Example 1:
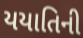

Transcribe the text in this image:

યયાતિની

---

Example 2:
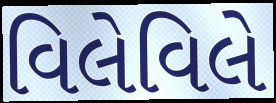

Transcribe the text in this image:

વિલેવિલે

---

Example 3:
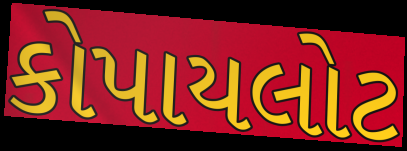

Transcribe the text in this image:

કોપાયલોટ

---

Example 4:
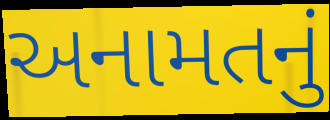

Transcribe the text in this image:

અનામતનું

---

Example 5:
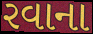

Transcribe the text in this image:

રવાના